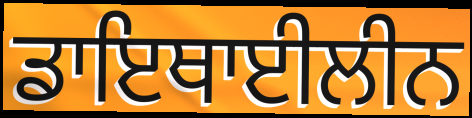
ਡਾਇਥਾਈਲੀਨ